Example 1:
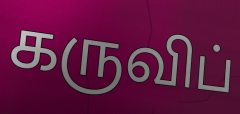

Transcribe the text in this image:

கருவிப்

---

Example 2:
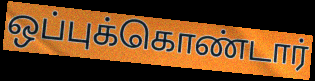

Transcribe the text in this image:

ஒப்புக்கொண்டார்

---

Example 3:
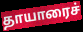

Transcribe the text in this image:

தாயாரைச்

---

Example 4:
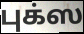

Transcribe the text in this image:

புக்ஸ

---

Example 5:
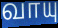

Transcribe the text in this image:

வாயு